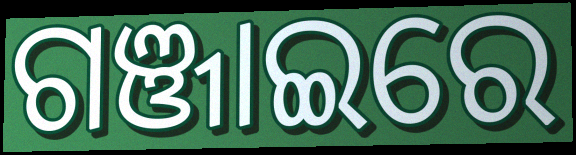
ଗଞ୍ଜାଇରେ